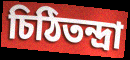
চিঠিতন্দ্রা